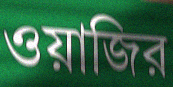
ওয়াজির